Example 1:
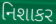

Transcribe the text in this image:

નિશાકર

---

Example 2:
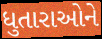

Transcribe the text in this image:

ધુતારાઓને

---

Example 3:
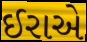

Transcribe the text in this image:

ઈરાએ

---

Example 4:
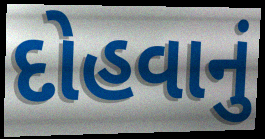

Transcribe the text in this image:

દોહવાનું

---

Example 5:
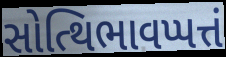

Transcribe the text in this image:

સોત્થિભાવપ્પત્તં